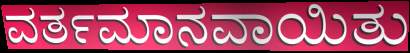
ವರ್ತಮಾನವಾಯಿತು